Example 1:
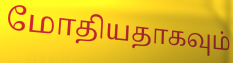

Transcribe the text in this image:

மோதியதாகவும்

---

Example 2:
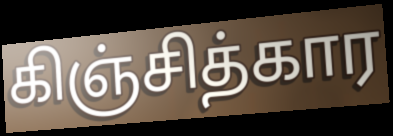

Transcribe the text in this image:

கிஞ்சித்கார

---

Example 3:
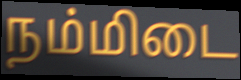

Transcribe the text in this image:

நம்மிடை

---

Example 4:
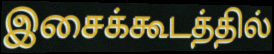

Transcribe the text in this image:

இசைக்கூடத்தில்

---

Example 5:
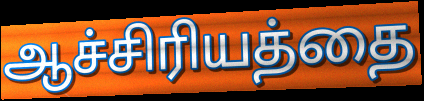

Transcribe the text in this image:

ஆச்சிரியத்தை